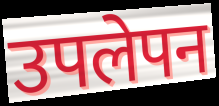
उपलेपन